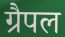
ग्रैपल